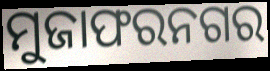
ମୁଜାଫରନଗର